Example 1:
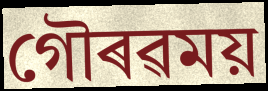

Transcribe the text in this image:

গৌৰৱময়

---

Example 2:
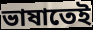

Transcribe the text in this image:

ভাষাতেই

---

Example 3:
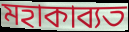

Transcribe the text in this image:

মহাকাব্যত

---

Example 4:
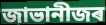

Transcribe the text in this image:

জাভানীজৰ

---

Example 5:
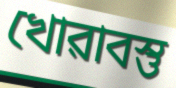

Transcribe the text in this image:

খোৱাবস্তু